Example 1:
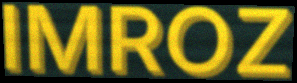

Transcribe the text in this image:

IMROZ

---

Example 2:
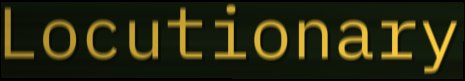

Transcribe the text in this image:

Locutionary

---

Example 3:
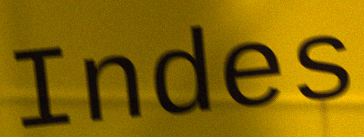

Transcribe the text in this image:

Indes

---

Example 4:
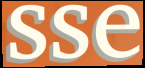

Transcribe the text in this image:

sse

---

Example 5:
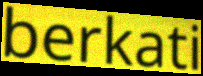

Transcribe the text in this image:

berkati